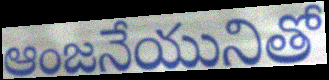
ఆంజనేయునితో